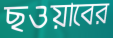
ছওয়াবের